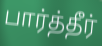
பார்த்தீர்